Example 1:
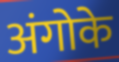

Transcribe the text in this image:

अंगोके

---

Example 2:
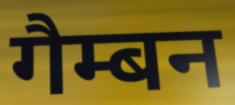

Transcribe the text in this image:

गैम्बन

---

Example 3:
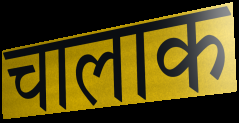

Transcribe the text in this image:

चालाक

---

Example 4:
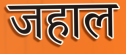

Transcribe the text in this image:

जहाल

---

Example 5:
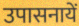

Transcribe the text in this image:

उपासनायें